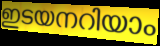
ഇടയനറിയാം